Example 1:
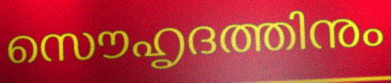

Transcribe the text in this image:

സൌഹൃദത്തിനും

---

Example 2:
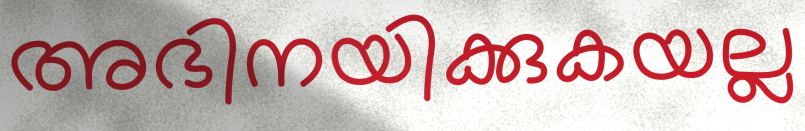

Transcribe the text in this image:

അഭിനയിക്കുകയല്ല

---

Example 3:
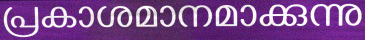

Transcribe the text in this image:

പ്രകാശമാനമാക്കുന്നു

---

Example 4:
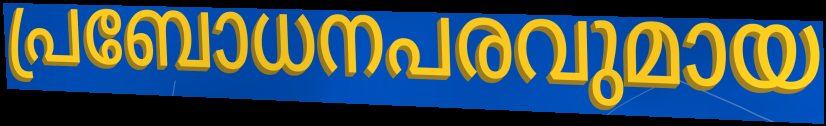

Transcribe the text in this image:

പ്രബോധനപരവുമായ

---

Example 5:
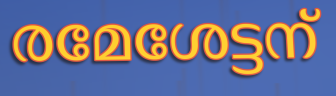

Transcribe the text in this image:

രമേശേട്ടന്